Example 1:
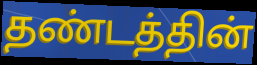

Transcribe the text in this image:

தண்டத்தின்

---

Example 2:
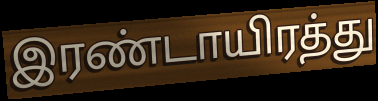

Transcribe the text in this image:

இரண்டாயிரத்து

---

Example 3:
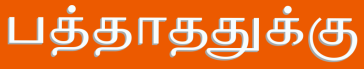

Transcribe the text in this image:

பத்தாததுக்கு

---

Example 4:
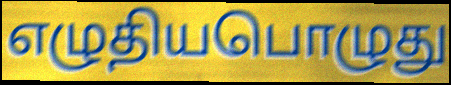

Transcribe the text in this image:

எழுதியபொழுது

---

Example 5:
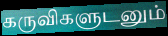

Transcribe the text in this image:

கருவிகளுடனும்